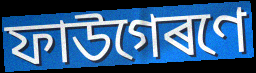
ফাউগেৰণে